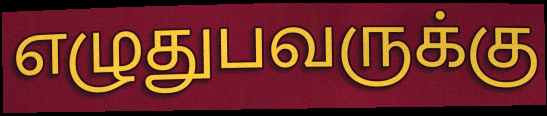
எழுதுபவருக்கு